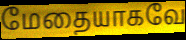
மேதையாகவே